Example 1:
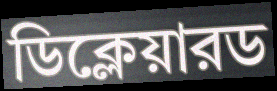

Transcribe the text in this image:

ডিক্লেয়ারড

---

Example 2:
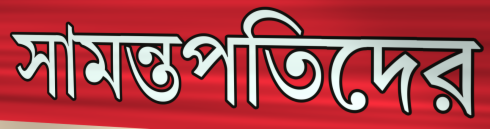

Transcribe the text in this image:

সামন্তপতিদের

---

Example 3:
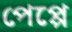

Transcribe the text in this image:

পেপ্পে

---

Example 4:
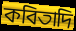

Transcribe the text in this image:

কবিতাদি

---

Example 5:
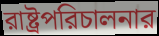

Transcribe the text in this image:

রাষ্ট্রপরিচালনার